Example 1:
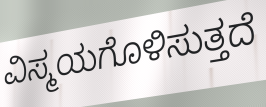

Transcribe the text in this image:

ವಿಸ್ಮಯಗೊಳಿಸುತ್ತದೆ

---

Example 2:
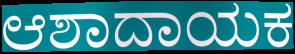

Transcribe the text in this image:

ಆಶಾದಾಯಕ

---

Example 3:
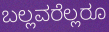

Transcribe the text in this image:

ಬಲ್ಲವರೆಲ್ಲರೂ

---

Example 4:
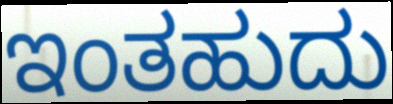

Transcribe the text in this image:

ಇಂತಹುದು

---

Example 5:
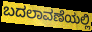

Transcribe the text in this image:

ಬದಲಾವಣೆಯಲ್ಲಿ